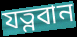
যত্নবান